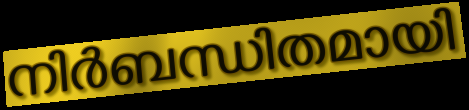
നിർബന്ധിതമായി